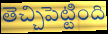
తెచ్చిపెట్టింది